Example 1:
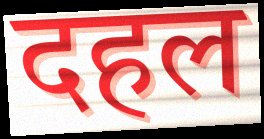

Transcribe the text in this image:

दहल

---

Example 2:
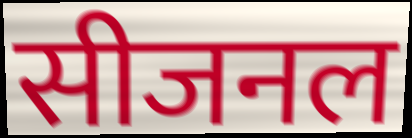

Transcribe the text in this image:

सीजनल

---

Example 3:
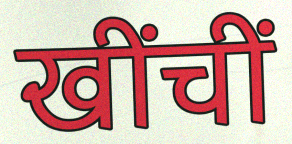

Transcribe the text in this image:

खींचीं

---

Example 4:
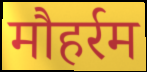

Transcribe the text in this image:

मौहर्रम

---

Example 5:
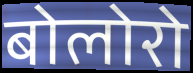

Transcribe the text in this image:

बोलोरो